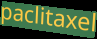
paclitaxel